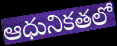
ఆధునికతలో